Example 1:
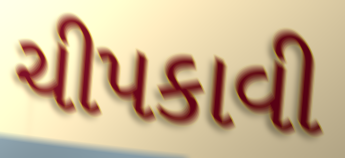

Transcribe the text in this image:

ચીપકાવી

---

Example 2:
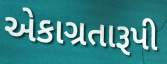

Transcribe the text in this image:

એકાગ્રતારૂપી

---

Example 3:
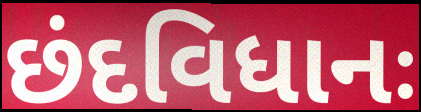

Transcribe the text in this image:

છંદવિધાનઃ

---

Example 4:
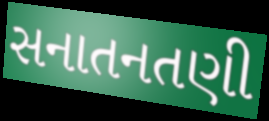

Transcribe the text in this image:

સનાતનતણી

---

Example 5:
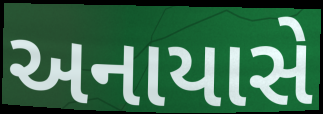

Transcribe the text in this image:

અનાયાસે